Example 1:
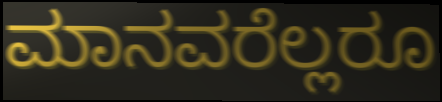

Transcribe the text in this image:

ಮಾನವರೆಲ್ಲರೂ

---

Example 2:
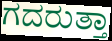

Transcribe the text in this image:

ಗದರುತ್ತಾ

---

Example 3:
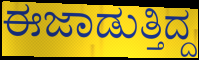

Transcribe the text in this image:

ಈಜಾಡುತ್ತಿದ್ದ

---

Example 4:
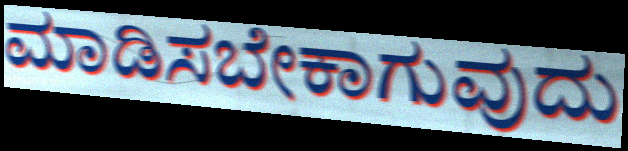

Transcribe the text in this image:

ಮಾಡಿಸಬೇಕಾಗುವುದು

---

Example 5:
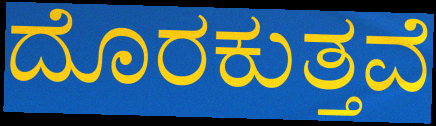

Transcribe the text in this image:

ದೊರಕುತ್ತವೆ